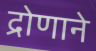
द्रोणाने